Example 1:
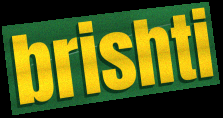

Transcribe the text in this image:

brishti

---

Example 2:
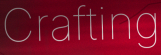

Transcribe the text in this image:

Crafting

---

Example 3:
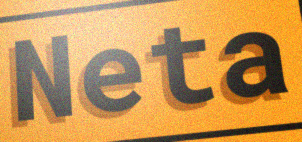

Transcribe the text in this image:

Neta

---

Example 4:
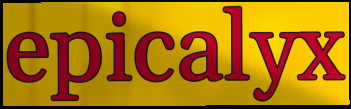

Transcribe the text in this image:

epicalyx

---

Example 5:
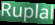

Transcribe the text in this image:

Ruplal